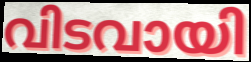
വിടവായി